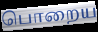
பொறைய